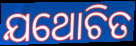
ଯଥୋଚିତ